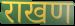
राखण